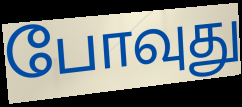
போவுது